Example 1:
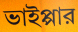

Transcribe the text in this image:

ভাইপ্পার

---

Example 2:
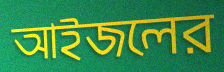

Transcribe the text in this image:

আইজলের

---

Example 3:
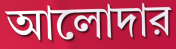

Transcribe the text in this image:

আলোদার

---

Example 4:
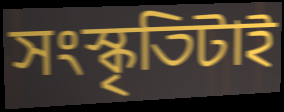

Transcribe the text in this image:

সংস্কৃতিটাই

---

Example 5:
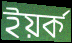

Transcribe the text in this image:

ইয়র্ক